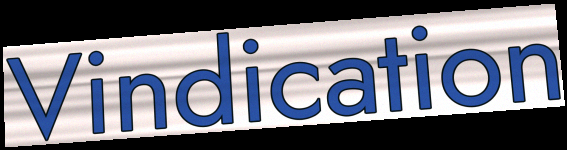
Vindication